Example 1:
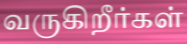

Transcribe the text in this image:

வருகிறீர்கள்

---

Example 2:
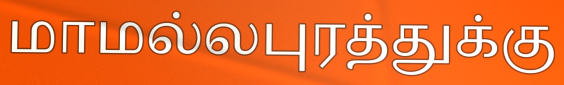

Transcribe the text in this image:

மாமல்லபுரத்துக்கு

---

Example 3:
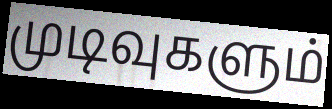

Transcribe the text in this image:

முடிவுகளும்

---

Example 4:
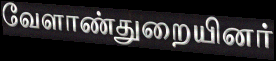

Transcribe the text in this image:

வேளாண்துறையினர்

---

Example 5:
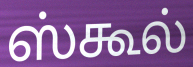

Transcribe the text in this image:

ஸ்கூல்